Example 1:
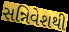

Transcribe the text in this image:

સન્નિવેશથી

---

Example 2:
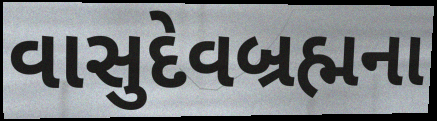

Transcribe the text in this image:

વાસુદેવબ્રહ્મના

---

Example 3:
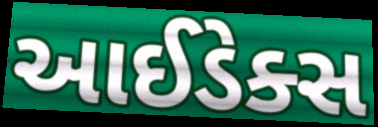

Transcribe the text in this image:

આઈડેક્સ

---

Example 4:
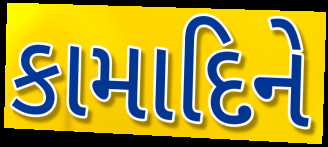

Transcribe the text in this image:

કામાદિને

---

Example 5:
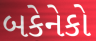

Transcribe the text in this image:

બકેનેકો